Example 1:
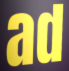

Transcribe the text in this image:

ad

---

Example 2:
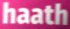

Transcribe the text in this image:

haath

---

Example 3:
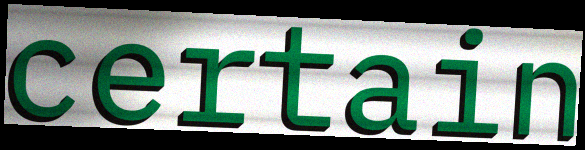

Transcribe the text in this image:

certain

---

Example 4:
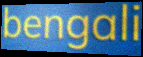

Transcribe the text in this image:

bengali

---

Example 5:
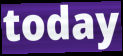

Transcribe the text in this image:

today